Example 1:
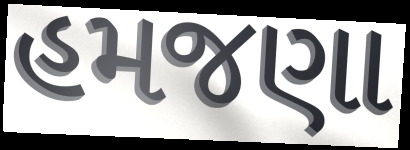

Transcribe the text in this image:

હમજણા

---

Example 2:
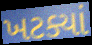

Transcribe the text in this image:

ખટક્યાં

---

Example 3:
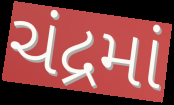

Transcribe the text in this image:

ચંદ્રમાં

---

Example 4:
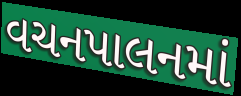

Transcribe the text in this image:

વચનપાલનમાં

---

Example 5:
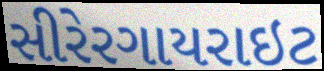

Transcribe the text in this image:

સીરેરગાયરાઇટ